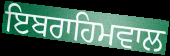
ਇਬਰਾਹਿਮਵਾਲ